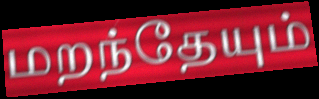
மறந்தேயும்